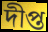
দীপ্ত